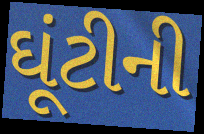
ઘૂંટીની